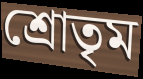
শ্রোতৃম